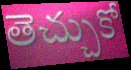
తెచ్చుకో